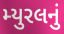
મ્યુરલનું